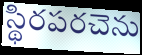
స్థిరపరచెను